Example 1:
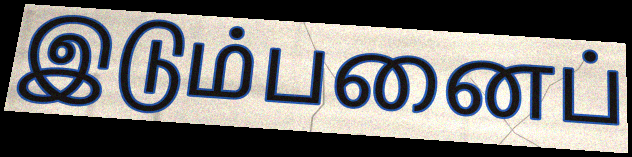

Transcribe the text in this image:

இடும்பனைப்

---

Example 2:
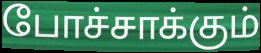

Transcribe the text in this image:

போச்சாக்கும்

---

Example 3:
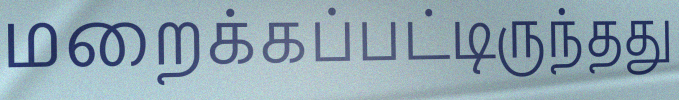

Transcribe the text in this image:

மறைக்கப்பட்டிருந்தது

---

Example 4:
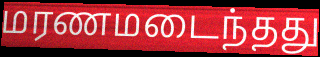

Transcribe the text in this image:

மரணமடைந்தது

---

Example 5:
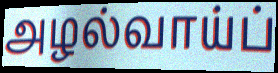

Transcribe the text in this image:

அழல்வாய்ப்